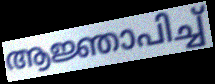
ആജ്ഞാപിച്ച്